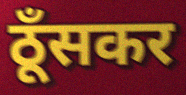
ठूँसकर